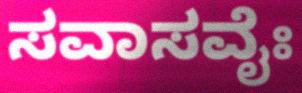
ಸವಾಸವೈಃ